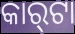
କାର୍‍ଟା